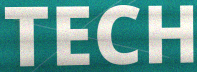
TECH